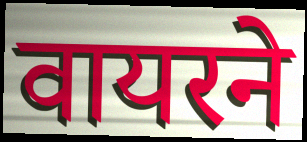
वायरने